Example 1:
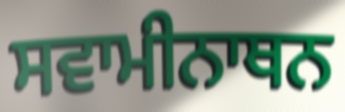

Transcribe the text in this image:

ਸਵਾਮੀਨਾਥਨ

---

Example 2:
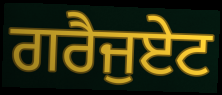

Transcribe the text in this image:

ਗਰੈਜੁਏਟ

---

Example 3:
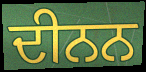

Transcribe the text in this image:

ਦੀਨਨ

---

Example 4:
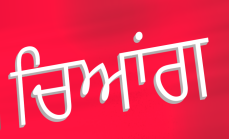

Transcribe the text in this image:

ਚਿਆਂਗ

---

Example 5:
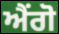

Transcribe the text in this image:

ਐਂਗੋ